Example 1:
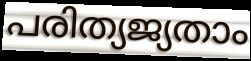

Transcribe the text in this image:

പരിത്യജ്യതാം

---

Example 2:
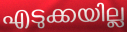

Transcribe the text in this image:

എടുക്കയില്ല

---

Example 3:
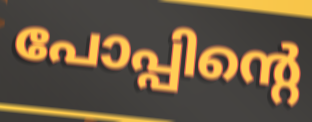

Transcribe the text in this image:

പോപ്പിന്റെ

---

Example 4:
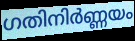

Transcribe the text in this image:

ഗതിനിർണ്ണയം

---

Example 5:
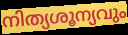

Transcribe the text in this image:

നിത്യശൂന്യവും